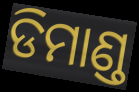
ଡିମାଣ୍ଡ